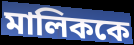
মালিককে